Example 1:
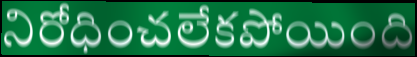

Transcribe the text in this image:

నిరోధించలేకపోయింది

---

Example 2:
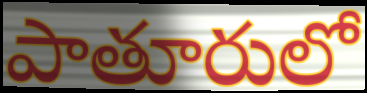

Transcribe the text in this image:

పాతూరులో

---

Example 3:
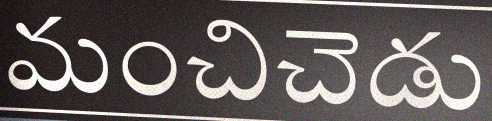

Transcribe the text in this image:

మంచిచెడు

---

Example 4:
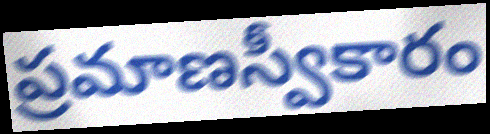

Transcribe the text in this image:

ప్రమాణస్వీకారం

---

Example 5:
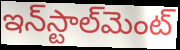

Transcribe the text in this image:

ఇన్‌స్టాల్‌మెంట్